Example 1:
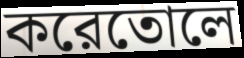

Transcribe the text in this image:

করেতোলে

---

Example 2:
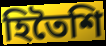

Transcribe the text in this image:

হিতৈশি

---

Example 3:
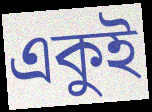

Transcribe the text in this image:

একুই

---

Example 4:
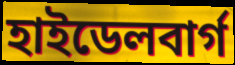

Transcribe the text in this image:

হাইডেলবার্গ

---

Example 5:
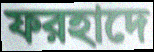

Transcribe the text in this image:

ফরহাদে